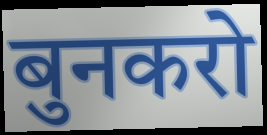
बुनकरो